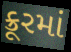
ક્રૂરમાં